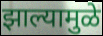
झाल्यामुळे